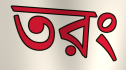
তরং